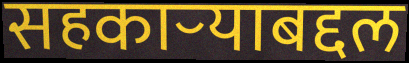
सहकाऱ्याबद्दल